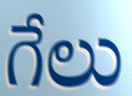
గేలు